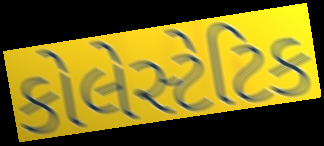
કોલેસ્ટેટિક